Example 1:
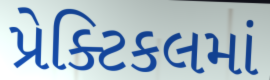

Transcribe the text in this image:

પ્રેક્ટિકલમાં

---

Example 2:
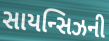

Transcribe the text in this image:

સાયન્સિઝની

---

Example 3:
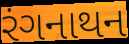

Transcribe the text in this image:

રંગનાથન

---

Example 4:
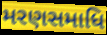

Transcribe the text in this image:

મરણસમાધિ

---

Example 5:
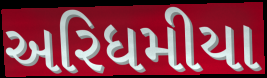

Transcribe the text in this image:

અરિધમીયા